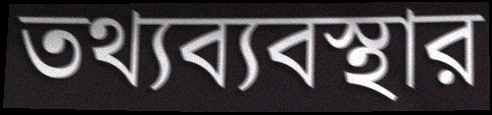
তথ্যব্যবস্থার